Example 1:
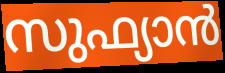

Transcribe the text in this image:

സുഫ്യാൻ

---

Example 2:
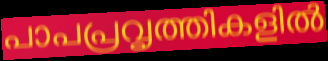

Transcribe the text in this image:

പാപപ്രവൃത്തികളിൽ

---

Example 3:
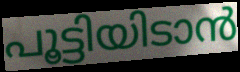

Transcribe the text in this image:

പൂട്ടിയിടാൻ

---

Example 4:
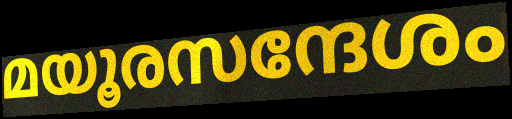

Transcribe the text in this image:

മയൂരസന്ദേശം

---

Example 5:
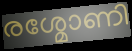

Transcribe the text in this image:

രശ്മോണി